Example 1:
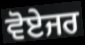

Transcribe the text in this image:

ਵੋਏਜਰ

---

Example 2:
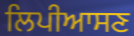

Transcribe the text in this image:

ਲਿਪੀਆਸਣ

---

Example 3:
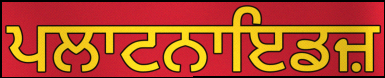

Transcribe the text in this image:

ਪਲਾਟਨਾਇਡਜ਼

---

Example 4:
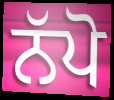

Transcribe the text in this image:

ਨੱਪੋ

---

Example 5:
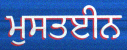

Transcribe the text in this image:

ਮੁਸਤਈਨ